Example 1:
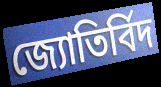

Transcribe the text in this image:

জ্যোতিৰ্বিদ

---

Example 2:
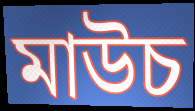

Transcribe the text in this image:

মাউচ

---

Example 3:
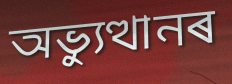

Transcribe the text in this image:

অভ্যুত্থানৰ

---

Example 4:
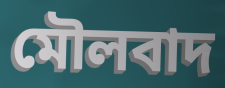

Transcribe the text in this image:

মৌলবাদ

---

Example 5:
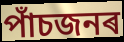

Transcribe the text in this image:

পাঁচজনৰ